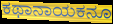
ಕಥಾನಾಯಕನೂ